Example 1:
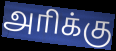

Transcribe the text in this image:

அரிக்கு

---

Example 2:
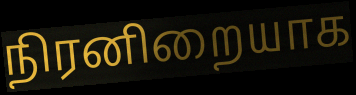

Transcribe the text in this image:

நிரனிறையாக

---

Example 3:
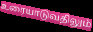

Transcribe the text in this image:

உரையாடுவதிலும்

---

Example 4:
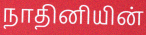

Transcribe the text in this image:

நாதினியின்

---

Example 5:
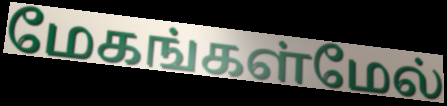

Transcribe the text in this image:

மேகங்கள்மேல்